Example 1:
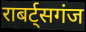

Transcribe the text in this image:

राबर्ट्सगंज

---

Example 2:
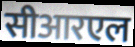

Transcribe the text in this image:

सीआरएल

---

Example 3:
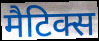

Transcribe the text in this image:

मैटिक्स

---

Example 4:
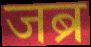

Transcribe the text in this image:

जब्र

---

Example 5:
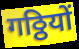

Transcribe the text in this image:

गठ्ठियों